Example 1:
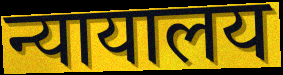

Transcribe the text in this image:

न्‍यायालय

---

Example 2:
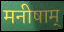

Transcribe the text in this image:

मनीषाम्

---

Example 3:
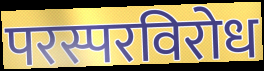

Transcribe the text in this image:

परस्परविरोध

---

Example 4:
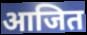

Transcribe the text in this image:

आजित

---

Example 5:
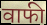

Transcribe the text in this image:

वाफी